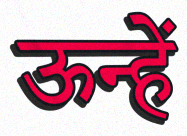
ऊन्हें